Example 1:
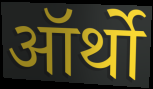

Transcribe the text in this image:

ऑर्थो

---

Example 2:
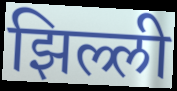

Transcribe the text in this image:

झिल्ली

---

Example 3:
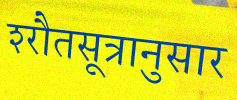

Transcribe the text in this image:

श्रौतसूत्रानुसार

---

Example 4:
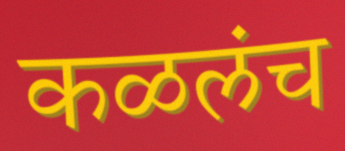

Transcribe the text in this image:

कळलंच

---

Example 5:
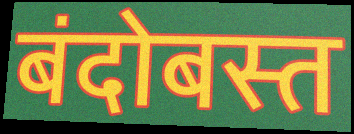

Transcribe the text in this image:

बंदोबस्त